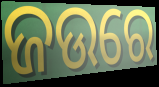
ଜଉରେ